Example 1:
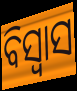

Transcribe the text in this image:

ବିସ୍ବାସ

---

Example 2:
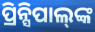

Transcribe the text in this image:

ପ୍ରିନ୍ସିପାଲ୍‍ଙ୍କ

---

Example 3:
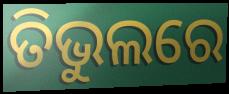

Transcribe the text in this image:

ତିଭୁଲରେ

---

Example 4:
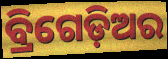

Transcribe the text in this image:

ବ୍ରିଗେଡ଼ିଅର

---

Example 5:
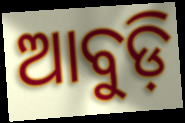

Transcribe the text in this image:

ଆବୁଡ଼ି